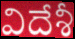
విదేశీ